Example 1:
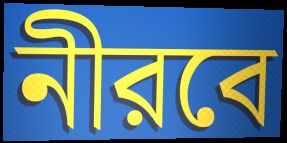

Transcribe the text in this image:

নীরবে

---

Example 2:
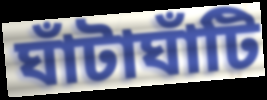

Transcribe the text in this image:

ঘাঁটাঘাঁটি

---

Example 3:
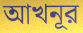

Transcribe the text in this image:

আখনূর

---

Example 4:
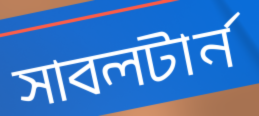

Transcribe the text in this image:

সাবলটার্ন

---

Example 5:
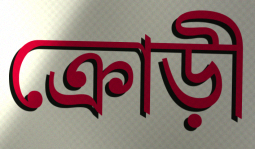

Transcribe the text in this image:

ক্রোড়ী